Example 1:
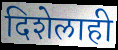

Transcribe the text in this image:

दिशेलाही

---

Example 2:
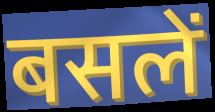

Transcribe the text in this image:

बसलें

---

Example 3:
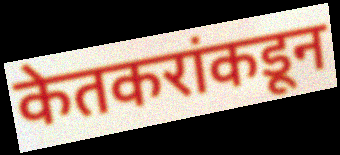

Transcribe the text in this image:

केतकरांकडून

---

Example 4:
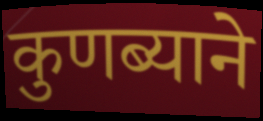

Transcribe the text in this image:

कुणब्याने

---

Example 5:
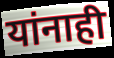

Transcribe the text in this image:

यांनाही